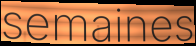
semaines